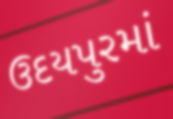
ઉદયપુરમાં